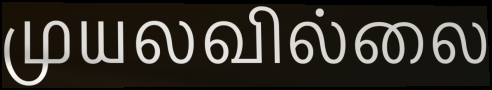
முயலவில்லை